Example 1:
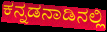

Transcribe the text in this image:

ಕನ್ನಡನಾಡಿನಲ್ಲಿ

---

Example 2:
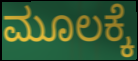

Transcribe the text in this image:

ಮೂಲಕ್ಕೆ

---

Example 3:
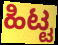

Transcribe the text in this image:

ಹಿಟ್ಟ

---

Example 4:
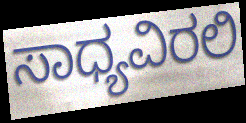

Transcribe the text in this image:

ಸಾಧ್ಯವಿರಲಿ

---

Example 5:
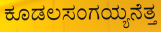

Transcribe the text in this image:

ಕೂಡಲಸಂಗಯ್ಯನೆತ್ತ